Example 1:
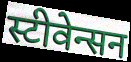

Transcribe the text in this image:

स्टीवेन्सन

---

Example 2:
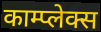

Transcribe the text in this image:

काम्प्लेक्स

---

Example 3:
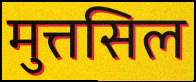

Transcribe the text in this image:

मुत्तसिल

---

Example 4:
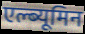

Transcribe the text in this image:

एल्ब्यूमिन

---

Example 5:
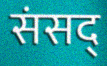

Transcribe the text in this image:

संसद्